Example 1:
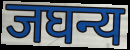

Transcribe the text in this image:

जघन्य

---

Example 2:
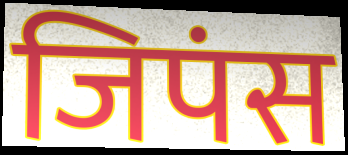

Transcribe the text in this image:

जिपंस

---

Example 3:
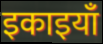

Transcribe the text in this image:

इकाइयाँ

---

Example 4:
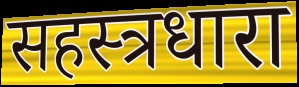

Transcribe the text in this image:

सहस्त्रधारा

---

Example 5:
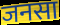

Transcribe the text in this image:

जनसा